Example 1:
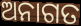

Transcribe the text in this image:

ଅନାଗତ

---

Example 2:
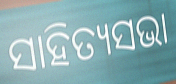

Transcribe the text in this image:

ସାହିତ୍ୟସଭା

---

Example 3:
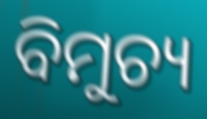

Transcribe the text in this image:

ବିମୁଚ୍ୟ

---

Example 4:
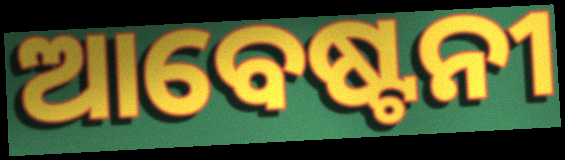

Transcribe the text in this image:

ଆବେଷ୍ଟନୀ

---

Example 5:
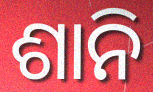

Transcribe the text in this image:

ଶାନି